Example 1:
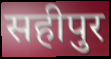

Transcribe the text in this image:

सहीपुर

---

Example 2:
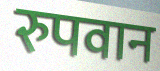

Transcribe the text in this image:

रुपवान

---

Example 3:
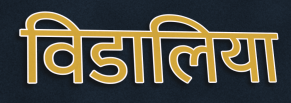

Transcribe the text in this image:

विडालिया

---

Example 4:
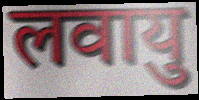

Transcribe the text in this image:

लवायु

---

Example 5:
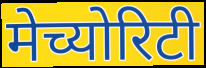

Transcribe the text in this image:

मेच्योरिटी